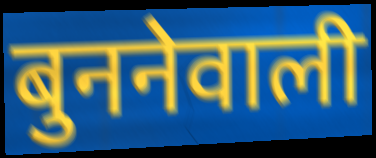
बुननेवाली